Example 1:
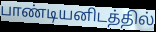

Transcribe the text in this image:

பாண்டியனிடத்தில்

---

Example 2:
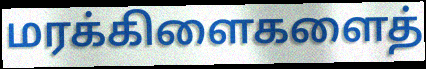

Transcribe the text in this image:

மரக்கிளைகளைத்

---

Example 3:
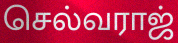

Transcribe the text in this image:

செல்வராஜ்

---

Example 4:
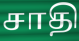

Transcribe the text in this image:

சாதி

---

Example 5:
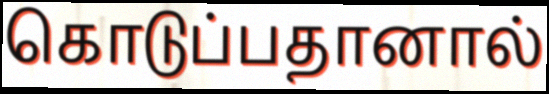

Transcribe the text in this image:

கொடுப்பதானால்